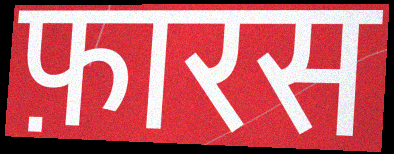
फ़ारस